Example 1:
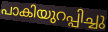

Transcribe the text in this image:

പാകിയുറപ്പിച്ചു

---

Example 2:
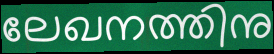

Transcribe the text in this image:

ലേഖനത്തിനു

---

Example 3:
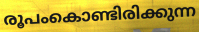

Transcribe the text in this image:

രൂപംകൊണ്ടിരിക്കുന്ന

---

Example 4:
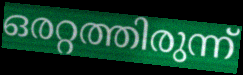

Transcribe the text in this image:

ഒരറ്റത്തിരുന്ന്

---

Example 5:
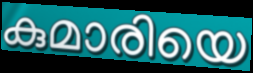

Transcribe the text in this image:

കുമാരിയെ